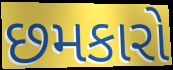
છમકારો